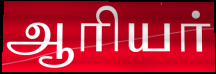
ஆரியர்